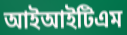
আইআইটিএম